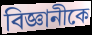
বিজ্ঞানীকে